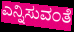
ಎನ್ನಿಸುವಂತೆ